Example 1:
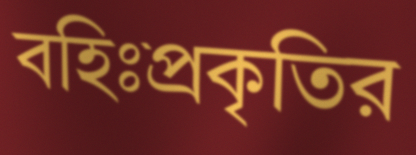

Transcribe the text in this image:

বহিঃপ্রকৃতির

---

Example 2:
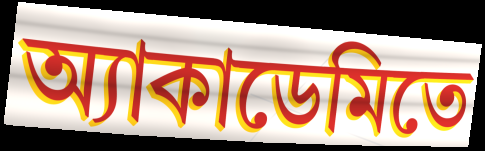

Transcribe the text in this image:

অ্যাকাডেমিতে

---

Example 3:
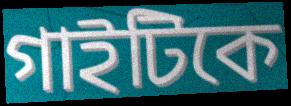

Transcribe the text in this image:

গাইটিকে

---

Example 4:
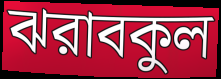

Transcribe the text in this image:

ঝরাবকুল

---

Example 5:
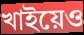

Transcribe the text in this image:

খাইয়েও